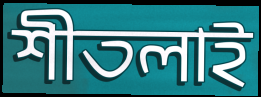
শীতলাই